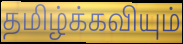
தமிழ்க்கவியும்